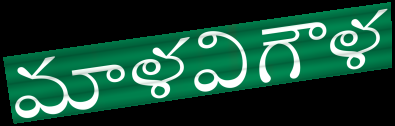
మాళవిగౌళ